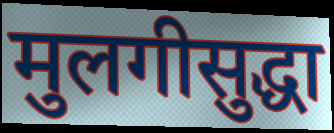
मुलगीसुद्धा